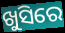
ଖୁସିରେ